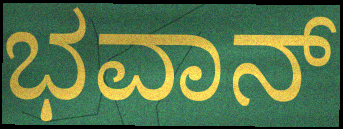
ಭವಾನ್